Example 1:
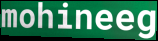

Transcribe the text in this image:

mohineeg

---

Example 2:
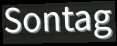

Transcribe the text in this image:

Sontag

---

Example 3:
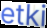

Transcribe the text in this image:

etki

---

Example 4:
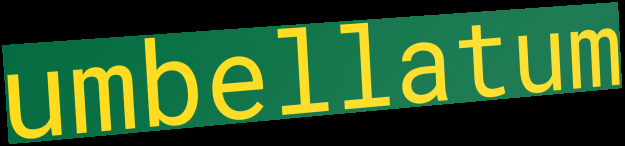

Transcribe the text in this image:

umbellatum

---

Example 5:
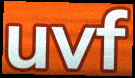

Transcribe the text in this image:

uvf